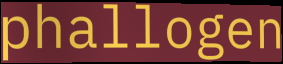
phallogen